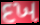
દખ